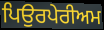
ਪਿਉਰਪੇਰੀਅਮ